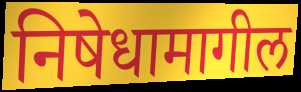
निषेधामागील